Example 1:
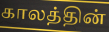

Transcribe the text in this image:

காலத்தின்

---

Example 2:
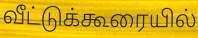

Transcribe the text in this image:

வீட்டுக்கூரையில்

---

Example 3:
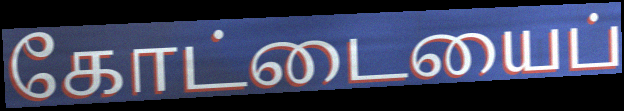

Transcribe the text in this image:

கோட்டையைப்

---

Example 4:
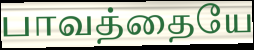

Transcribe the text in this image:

பாவத்தையே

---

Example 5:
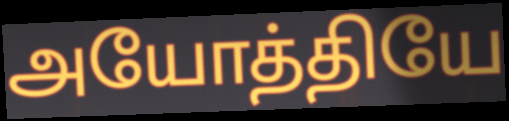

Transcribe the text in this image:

அயோத்தியே